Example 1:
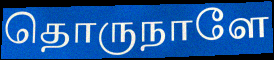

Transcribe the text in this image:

தொருநாளே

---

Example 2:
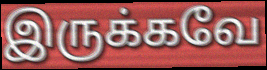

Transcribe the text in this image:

இருக்கவே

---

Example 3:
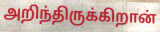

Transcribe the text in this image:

அறிந்திருக்கிறான்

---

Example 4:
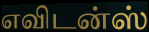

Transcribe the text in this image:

எவிடன்ஸ்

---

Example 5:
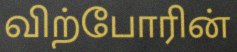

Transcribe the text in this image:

விற்போரின்